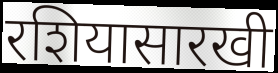
रशियासारखी